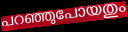
പറഞ്ഞുപോയതും